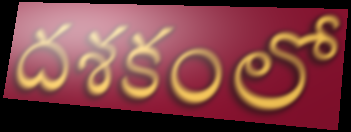
దశకంలో